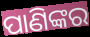
ପାଣିଙ୍କର